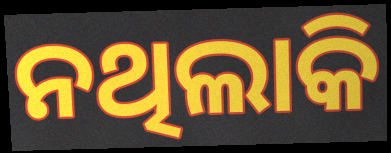
ନଥିଲାକି